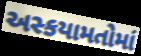
અસ્કયામતોમાં